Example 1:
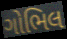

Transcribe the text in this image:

ગોભિલ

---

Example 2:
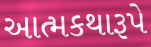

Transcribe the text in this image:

આત્મકથારૂપે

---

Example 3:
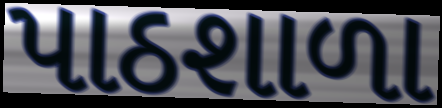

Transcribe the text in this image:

પાઠશાળા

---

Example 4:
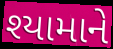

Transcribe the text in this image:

શ્યામાને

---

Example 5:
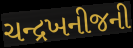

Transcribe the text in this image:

ચન્દ્રખનીજની